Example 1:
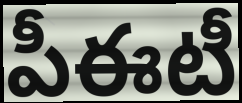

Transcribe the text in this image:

పీఈటీ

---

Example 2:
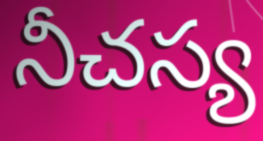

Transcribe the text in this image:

నీచస్య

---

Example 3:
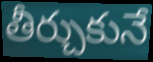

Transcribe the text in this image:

తీర్చుకునే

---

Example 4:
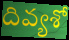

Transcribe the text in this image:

దివ్యశో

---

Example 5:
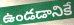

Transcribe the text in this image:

ఉండడానికే